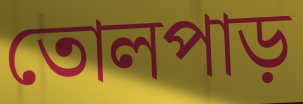
তোলপাড়